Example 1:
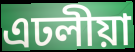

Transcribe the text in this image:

এঢলীয়া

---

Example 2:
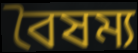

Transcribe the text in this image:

বৈষম্য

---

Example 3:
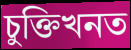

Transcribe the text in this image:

চুক্তিখনত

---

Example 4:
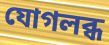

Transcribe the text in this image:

যোগলব্ধ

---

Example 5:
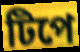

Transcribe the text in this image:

টিপে